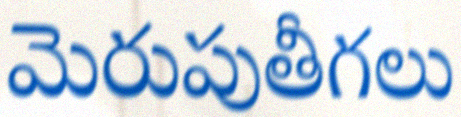
మెరుపుతీగలు